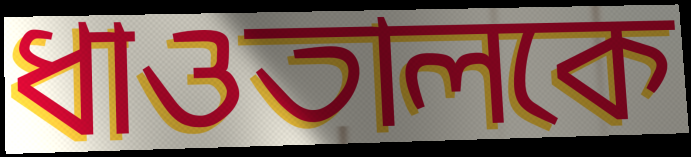
ধাওতালকে